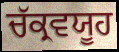
ਚੱਕ੍ਰਵਯੂਹ